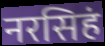
नरसिहं